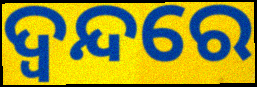
ଦ୍ଵନ୍ଦରେ